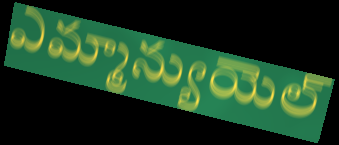
ఎమ్మాన్యుయెల్